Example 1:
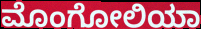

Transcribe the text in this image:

ಮೊಂಗೋಲಿಯಾ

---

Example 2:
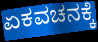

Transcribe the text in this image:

ಏಕವಚನಕ್ಕೆ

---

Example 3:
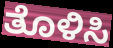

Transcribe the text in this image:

ತೊಳಿಸಿ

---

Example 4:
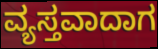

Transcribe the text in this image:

ವ್ಯಸ್ತವಾದಾಗ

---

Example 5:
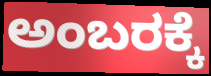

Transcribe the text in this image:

ಅಂಬರಕ್ಕೆ